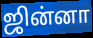
ஜின்னா